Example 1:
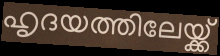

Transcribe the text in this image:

ഹൃദയത്തിലേയ്ക്ക്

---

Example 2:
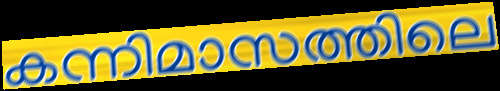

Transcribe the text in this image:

കന്നിമാസത്തിലെ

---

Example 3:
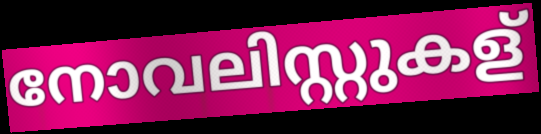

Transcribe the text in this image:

നോവലിസ്റ്റുകള്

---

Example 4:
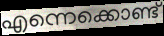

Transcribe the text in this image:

എന്നെക്കൊണ്ട്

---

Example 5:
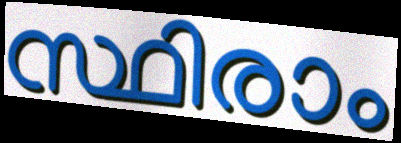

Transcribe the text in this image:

സ്ഥിരാം